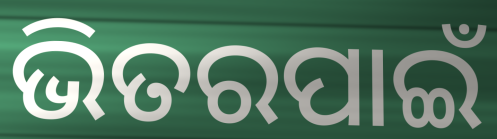
ଭିତରପାଇଁ